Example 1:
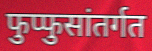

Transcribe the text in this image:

फुप्फुसांतर्गत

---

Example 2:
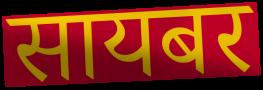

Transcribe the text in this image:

सायबर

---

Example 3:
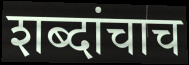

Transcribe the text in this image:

शब्दांचाच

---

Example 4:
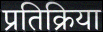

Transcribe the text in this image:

प्रतिक्रिया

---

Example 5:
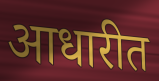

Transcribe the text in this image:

आधारीत